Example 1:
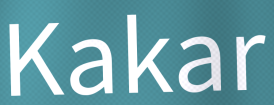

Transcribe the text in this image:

Kakar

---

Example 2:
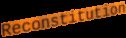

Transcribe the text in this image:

Reconstitution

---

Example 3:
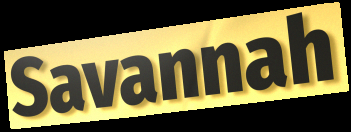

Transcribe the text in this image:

Savannah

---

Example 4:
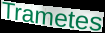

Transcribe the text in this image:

Trametes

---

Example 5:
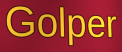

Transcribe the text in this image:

Golper